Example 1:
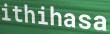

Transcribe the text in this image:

ithihasa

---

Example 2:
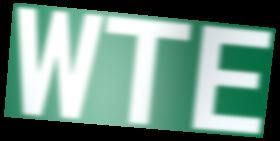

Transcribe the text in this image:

WTE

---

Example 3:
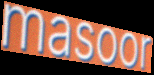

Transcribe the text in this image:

masoor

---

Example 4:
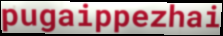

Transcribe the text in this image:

pugaippezhai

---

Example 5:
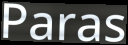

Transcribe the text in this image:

Paras